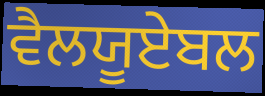
ਵੈਲਯੂਏਬਲ